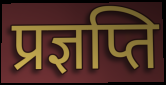
प्रज्ञप्ति